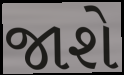
જાશે